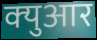
क्युआर